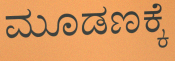
ಮೂಡಣಕ್ಕೆ